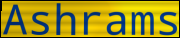
Ashrams